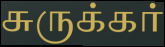
சுருக்கர்